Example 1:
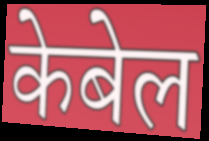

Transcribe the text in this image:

केबेल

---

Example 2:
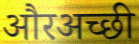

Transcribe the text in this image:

औरअच्छी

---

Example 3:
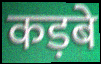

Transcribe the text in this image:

कड़बे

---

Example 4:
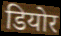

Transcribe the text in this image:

डियोर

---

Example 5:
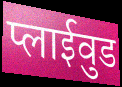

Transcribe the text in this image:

प्‍लाईवुड